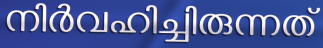
നിർവഹിച്ചിരുന്നത്